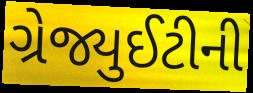
ગ્રેજ્યુઈટીની